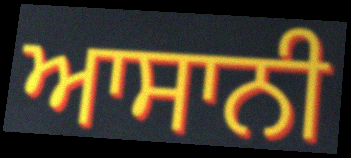
ਆਸਾਨੀ